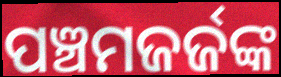
ପଞ୍ଚମଜର୍ଜଙ୍କ